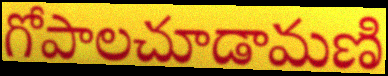
గోపాలచూడామణి